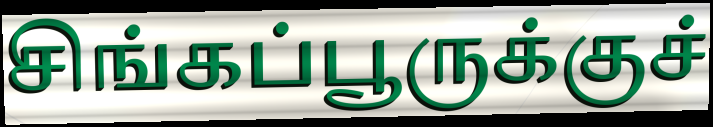
சிங்கப்பூருக்குச்